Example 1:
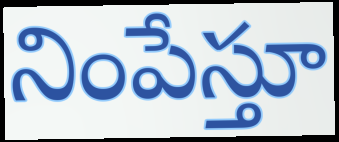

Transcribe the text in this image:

నింపేస్తూ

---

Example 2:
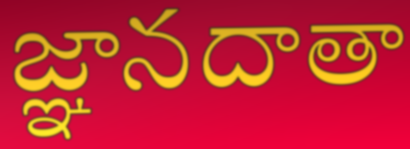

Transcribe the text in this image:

జ్ఞానదాతా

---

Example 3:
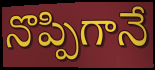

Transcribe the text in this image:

నొప్పిగానే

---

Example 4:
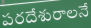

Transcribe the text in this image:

పరదేశురాలనే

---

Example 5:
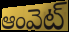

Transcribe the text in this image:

ఆంవెట్